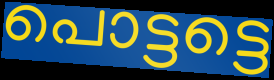
പൊട്ടട്ടെ